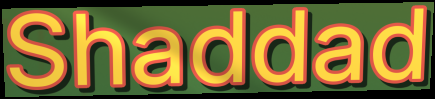
Shaddad